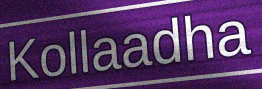
Kollaadha